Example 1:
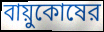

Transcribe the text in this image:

বায়ুকোষের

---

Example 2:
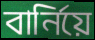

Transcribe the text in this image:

বার্নিয়ে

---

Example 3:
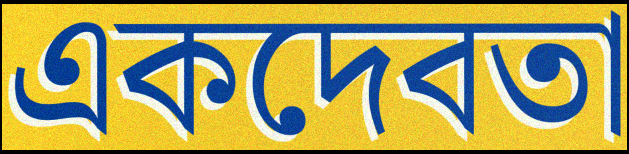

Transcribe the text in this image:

একদেবতা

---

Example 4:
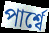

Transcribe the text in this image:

পার্শ্বে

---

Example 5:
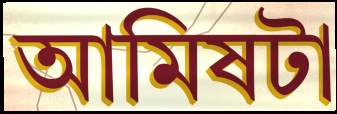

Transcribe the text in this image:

আমিষটা